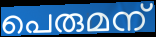
പെരുമന്